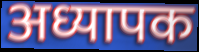
अध्‍यापक